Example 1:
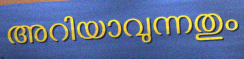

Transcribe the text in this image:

അറിയാവുന്നതും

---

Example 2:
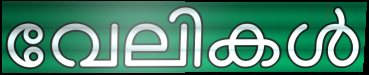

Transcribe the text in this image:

വേലികൾ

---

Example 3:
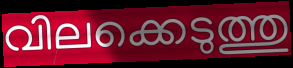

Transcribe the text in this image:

വിലക്കെടുത്തു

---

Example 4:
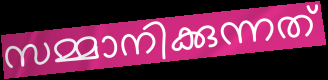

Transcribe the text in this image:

സമ്മാനിക്കുന്നത്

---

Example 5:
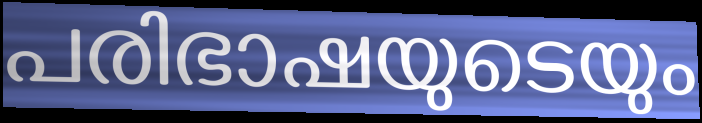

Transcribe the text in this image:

പരിഭാഷയുടെയും